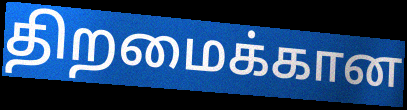
திறமைக்கான